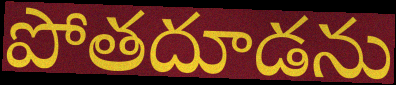
పోతదూడను